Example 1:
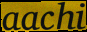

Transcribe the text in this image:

aachi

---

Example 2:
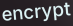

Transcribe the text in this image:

encrypt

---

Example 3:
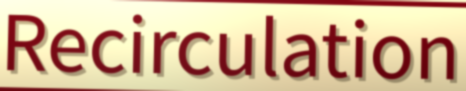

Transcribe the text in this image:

Recirculation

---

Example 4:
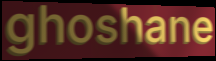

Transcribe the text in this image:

ghoshane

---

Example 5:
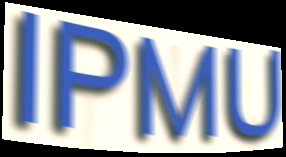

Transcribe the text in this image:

IPMU